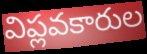
విప్లవకారుల